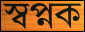
স্বপ্নক